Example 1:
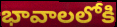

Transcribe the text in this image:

భావాలలోకి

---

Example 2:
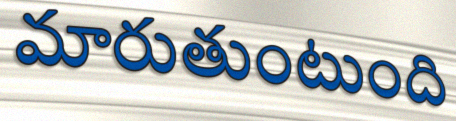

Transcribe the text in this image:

మారుతుంటుంది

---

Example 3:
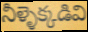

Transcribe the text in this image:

నీళ్ళెక్కడివి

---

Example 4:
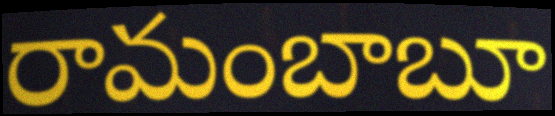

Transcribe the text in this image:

రామంబాబూ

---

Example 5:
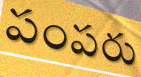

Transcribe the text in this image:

పంపరు